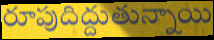
రూపుదిద్దుతున్నాయి